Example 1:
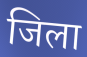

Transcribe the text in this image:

जिला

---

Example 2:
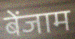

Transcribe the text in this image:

बेंजाम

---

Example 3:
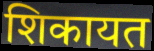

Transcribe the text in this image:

शिकायत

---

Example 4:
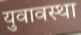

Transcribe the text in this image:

युवावस्था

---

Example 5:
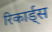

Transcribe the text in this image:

रिकार्ड्स